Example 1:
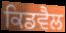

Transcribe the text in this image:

ਕਿਡਵੈਲ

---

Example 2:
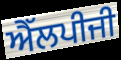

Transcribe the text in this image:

ਐੱਲਪੀਜੀ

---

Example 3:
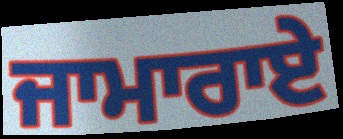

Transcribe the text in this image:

ਜਾਮਾਰਾਏ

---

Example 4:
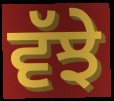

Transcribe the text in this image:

ਵੱਝੇ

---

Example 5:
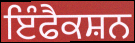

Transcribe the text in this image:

ਇੰਫੈਕਸ਼ਨ